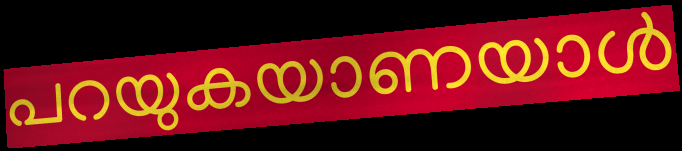
പറയുകയാണയാൾ